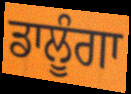
ਡਾਲੂੰਗਾ